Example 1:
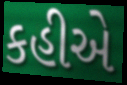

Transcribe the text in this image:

કહીએ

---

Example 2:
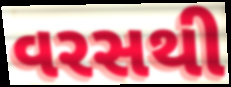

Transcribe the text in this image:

વરસથી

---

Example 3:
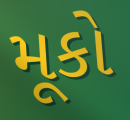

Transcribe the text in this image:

મૂકો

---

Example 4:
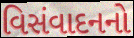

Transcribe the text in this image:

વિસંવાદનનો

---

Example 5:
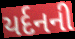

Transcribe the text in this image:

યર્દનની